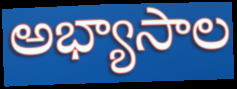
అభ్యాసాల